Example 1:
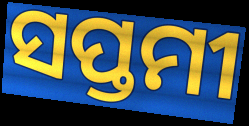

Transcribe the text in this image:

ସପ୍ତମୀ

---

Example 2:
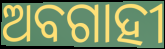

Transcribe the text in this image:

ଅବଗାହୀ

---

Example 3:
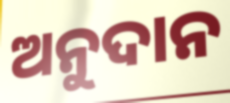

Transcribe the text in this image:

ଅନୁଦାନ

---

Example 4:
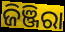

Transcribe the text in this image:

ଜିଞ୍ଜିରା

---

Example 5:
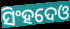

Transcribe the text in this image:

ସିଂହଦେଓ